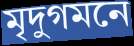
মৃদুগমনে